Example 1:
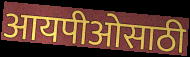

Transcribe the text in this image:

आयपीओसाठी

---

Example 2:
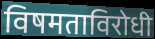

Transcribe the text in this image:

विषमताविरोधी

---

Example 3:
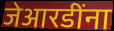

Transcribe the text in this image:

जेआरडींना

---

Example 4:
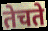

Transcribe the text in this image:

तेचते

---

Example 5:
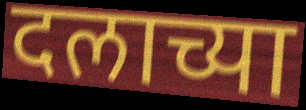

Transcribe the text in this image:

दलाच्या